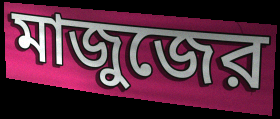
মাজুজের